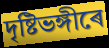
দৃষ্টিভঙ্গীৰে